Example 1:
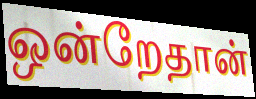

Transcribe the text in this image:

ஒன்றேதான்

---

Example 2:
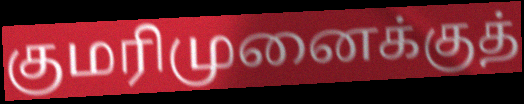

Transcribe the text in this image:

குமரிமுனைக்குத்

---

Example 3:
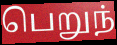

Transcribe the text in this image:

பெறுந்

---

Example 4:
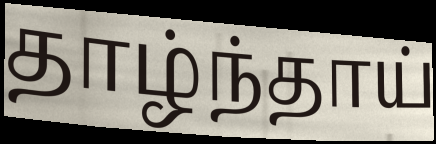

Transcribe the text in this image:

தாழ்ந்தாய்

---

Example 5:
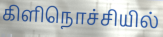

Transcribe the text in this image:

கிளிநொச்சியில்